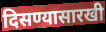
दिसण्यासारखी